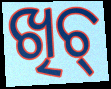
ଖିଚ୍